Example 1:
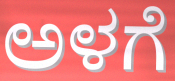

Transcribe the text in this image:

ಅಳಗೆ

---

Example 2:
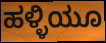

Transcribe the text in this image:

ಹಳ್ಳಿಯೂ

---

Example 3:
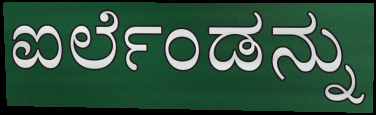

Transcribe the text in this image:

ಐರ್ಲೆಂಡನ್ನು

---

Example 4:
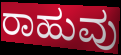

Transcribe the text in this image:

ರಾಹುವು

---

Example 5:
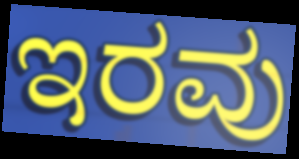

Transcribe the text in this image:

ಇರವು